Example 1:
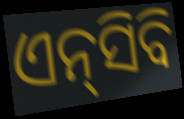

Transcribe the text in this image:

ଏନ୍‌ସିବି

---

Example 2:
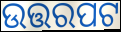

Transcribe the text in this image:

ଉତ୍ତରପଟ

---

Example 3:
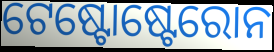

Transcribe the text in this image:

ଟେଷ୍ଟୋଷ୍ଟେରୋନ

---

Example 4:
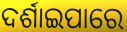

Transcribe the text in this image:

ଦର୍ଶାଇପାରେ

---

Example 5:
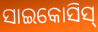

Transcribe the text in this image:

ସାଇକୋସିସ୍